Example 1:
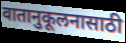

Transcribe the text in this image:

वातानुकूलनासाठी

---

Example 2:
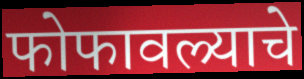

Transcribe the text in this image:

फोफावल्याचे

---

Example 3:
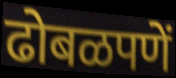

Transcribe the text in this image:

ढोबळपणें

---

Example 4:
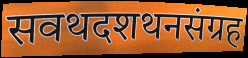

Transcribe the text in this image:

सवथदशथनसंग्रह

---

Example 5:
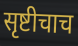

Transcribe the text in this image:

सृष्टीचाच